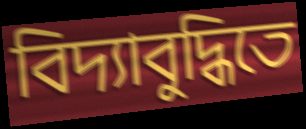
বিদ্যাবুদ্ধিতে